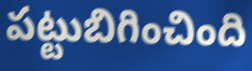
పట్టుబిగించింది